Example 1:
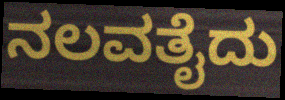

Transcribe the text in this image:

ನಲವತೈದು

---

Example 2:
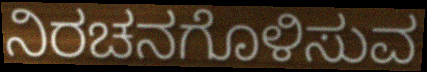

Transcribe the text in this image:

ನಿರಚನಗೊಳಿಸುವ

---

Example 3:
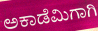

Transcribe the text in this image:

ಅಕಾಡೆಮಿಗಾಗಿ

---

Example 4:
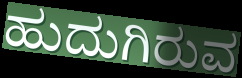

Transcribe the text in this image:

ಹುದುಗಿರುವ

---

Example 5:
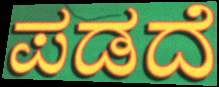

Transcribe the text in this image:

ಪಡದೆ